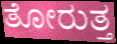
ತೋರುತ್ತ